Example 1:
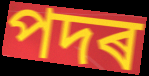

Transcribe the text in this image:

পদৰ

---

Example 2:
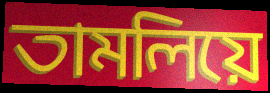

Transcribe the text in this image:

তামলিয়ে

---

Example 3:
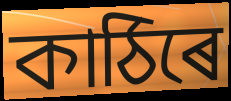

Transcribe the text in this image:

কাঠিৰে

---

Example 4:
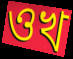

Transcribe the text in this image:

ওখ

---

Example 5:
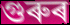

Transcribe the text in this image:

গুৰুৰ